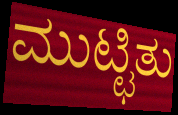
ಮುಟ್ಟಿತು